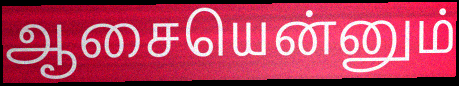
ஆசையென்னும்